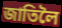
জাতিলৈ